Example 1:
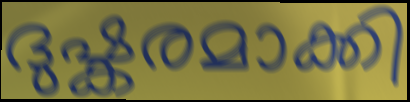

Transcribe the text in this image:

ദുഷ്കരമാക്കി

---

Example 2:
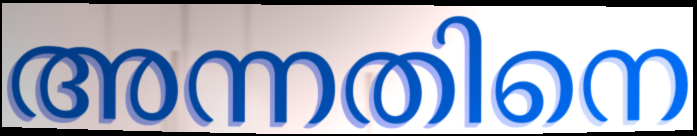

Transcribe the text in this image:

അന്നതിനെ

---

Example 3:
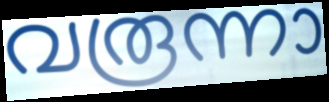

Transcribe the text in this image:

വരൂന്നാ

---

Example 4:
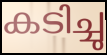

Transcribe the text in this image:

കടിച്ചു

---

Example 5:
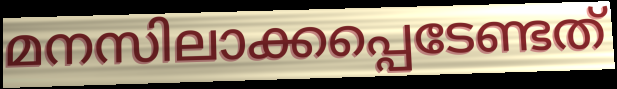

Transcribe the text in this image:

മനസിലാക്കപ്പെടേണ്ടത്